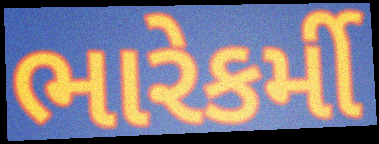
ભારેકર્મી